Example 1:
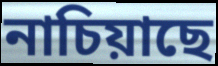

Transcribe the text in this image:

নাচিয়াছে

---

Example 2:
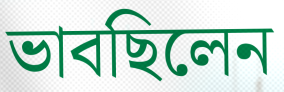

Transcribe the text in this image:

ভাবছিলেন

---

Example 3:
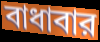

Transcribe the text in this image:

বাধাবার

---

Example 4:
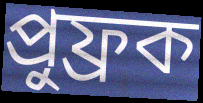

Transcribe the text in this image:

প্রুফ্রক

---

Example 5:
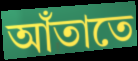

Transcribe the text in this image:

আঁতাতে